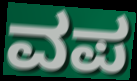
ವಪ